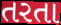
તરતા